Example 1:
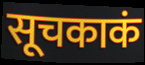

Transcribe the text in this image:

सूचकाकं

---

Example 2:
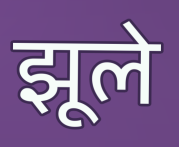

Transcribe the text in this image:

झूले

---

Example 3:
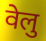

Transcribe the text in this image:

वेलु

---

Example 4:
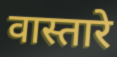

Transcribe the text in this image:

वास्तारे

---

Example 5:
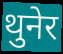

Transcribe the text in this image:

थुनेर